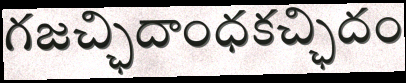
గజచ్ఛిదాంధకచ్ఛిదం